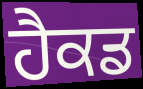
ਹੈਕਡ